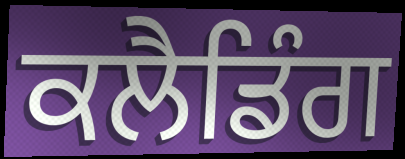
ਕਲੈਡਿੰਗ